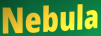
Nebula